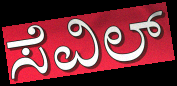
ಸೆವಿಲ್